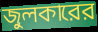
জুলকারের